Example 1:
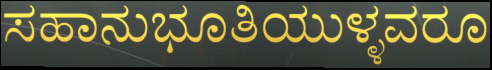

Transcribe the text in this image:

ಸಹಾನುಭೂತಿಯುಳ್ಳವರೂ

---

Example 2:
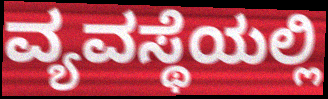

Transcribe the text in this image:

ವ್ಯವಸ್ಥೆಯಲ್ಲಿ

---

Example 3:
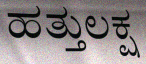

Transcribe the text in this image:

ಹತ್ತುಲಕ್ಷ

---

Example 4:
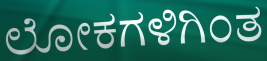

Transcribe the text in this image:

ಲೋಕಗಳಿಗಿಂತ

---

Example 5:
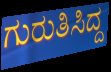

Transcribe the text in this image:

ಗುರುತಿಸಿದ್ದ